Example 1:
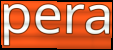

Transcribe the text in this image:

pera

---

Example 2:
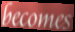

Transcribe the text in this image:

becomes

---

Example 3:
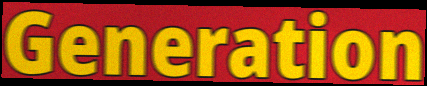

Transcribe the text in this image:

Generation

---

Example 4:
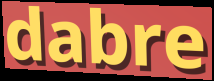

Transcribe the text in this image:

dabre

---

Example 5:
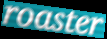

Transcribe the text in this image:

roaster